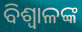
ବିଶ୍ୱାଳଙ୍କ